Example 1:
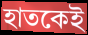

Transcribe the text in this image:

হাতকেই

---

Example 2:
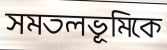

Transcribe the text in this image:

সমতলভূমিকে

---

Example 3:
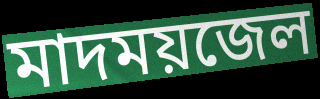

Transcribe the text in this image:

মাদময়জেল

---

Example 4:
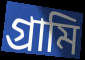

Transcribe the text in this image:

গ্রামি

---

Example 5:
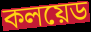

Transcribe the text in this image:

কলয়েড